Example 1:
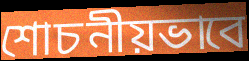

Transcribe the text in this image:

শোচনীয়ভাবে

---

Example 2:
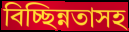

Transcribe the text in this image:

বিচ্ছিন্নতাসহ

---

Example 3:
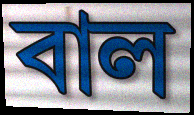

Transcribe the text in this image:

বাল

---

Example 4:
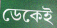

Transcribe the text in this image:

ডেকেই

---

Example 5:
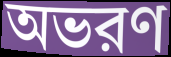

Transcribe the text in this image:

অভরণ